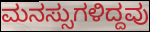
ಮನಸ್ಸುಗಳಿದ್ದವು